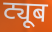
ट्यूब